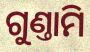
ଗୁଣ୍ତାମି